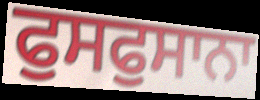
ਫੁਸਫੁਸਾਨਾ